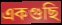
একগুছি